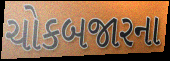
ચોકબજારના